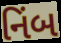
નિંબ